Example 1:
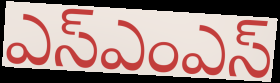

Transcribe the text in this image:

ఎస్ఎంఎస్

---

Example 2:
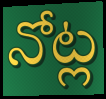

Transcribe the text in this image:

నోట్ల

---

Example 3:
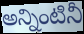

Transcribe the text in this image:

అన్నింటినీ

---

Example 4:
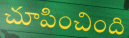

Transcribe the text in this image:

చూపించింది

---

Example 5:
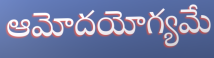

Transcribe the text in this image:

ఆమోదయోగ్యమే